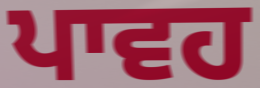
ਪਾਵਹ